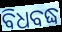
ବିଧବଦ୍ଧ